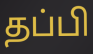
தப்பி